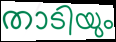
താടിയും